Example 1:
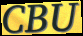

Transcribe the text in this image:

CBU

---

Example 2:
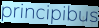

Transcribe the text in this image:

principibus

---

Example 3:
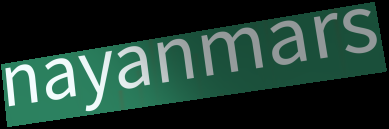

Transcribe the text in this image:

nayanmars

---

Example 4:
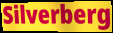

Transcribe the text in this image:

Silverberg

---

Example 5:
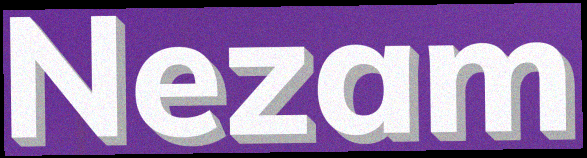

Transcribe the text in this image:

Nezam